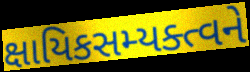
ક્ષાયિકસમ્યક્ત્વને